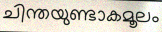
ചിന്തയുണ്ടാകമൂലം